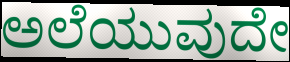
ಅಲೆಯುವುದೇ